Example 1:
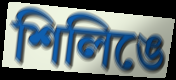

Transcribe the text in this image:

শিলিঙে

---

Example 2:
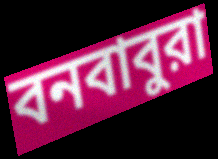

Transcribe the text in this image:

বনবাবুরা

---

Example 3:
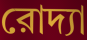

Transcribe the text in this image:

রোদ্যা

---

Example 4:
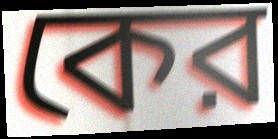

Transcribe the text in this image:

কের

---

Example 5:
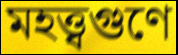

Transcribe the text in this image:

মহত্ত্বগুণে